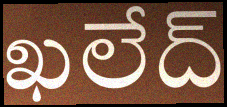
ఖలేద్